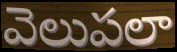
వెలుపలా